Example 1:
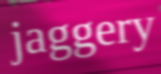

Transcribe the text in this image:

jaggery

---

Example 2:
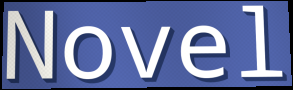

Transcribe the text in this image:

Novel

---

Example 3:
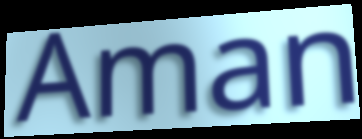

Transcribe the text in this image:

Aman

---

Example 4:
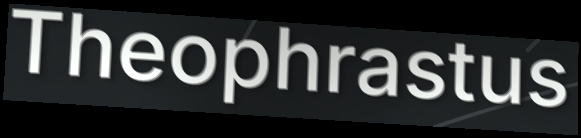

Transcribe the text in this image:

Theophrastus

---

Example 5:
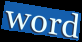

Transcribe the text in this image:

word